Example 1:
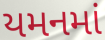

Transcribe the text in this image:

યમનમાં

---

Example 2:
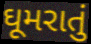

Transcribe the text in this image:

ઘૂમરાતું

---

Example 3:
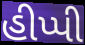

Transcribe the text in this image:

હીપ્પી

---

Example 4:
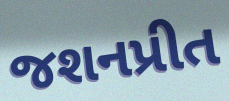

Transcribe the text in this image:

જશનપ્રીત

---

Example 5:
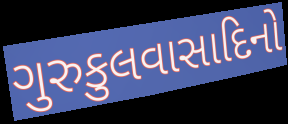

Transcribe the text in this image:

ગુરુકુલવાસાદિનો